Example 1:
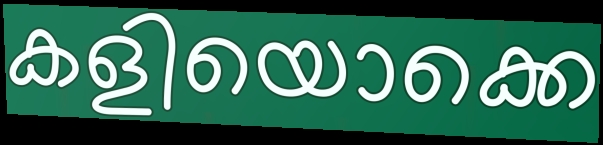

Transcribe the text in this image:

കളിയൊക്കെ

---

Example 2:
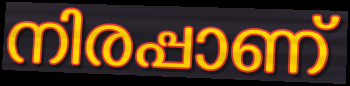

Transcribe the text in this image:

നിരപ്പാണ്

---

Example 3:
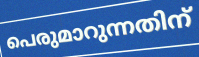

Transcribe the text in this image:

പെരുമാറുന്നതിന്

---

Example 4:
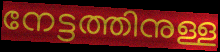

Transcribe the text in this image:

നേട്ടത്തിനുള്ള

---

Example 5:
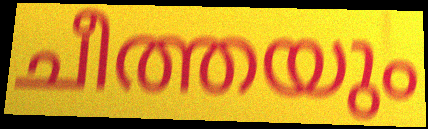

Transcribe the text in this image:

ചീത്തയും